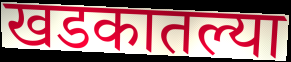
खडकातल्या